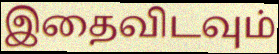
இதைவிடவும்